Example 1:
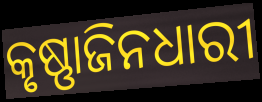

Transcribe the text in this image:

କୃଷ୍ଣାଜିନଧାରୀ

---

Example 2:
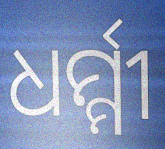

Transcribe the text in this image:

ଧର୍ମ୍ମୀ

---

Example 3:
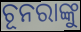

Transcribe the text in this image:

ଚୂନରାଙ୍କୁ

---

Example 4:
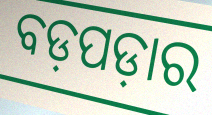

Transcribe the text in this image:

ବଡ଼ପଡ଼ାର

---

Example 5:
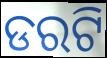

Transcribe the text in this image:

ଡରଟି